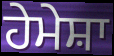
ਹੇਮੇਸ਼ਾ